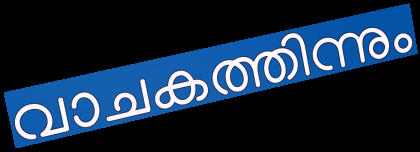
വാചകത്തിന്നും